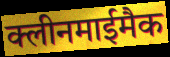
क्लीनमाईमैक